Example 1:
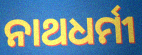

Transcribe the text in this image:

ନାଥଧର୍ମୀ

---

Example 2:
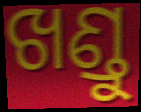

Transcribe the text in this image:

ଖଣ୍ଡୁ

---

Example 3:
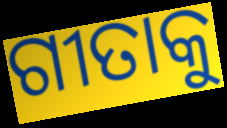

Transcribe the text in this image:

ଗୀତାକୁ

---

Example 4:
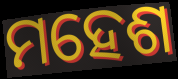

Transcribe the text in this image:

ମହେଶ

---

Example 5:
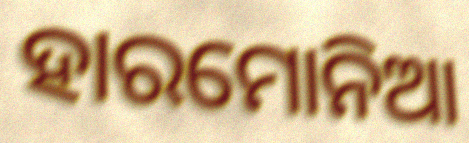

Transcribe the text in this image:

ହାରମୋନିଆ